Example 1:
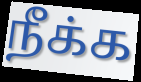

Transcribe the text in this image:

நீக்க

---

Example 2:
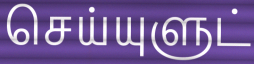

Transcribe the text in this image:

செய்யுளுட்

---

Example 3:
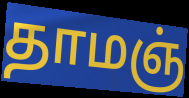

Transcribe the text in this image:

தாமஞ்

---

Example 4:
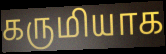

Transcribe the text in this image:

கருமியாக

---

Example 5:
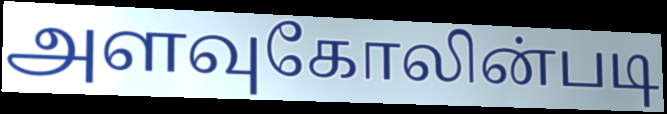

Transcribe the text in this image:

அளவுகோலின்படி